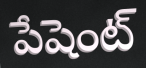
పేషెంట్